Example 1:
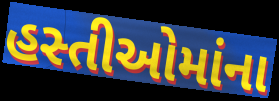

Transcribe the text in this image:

હસ્તીઓમાંના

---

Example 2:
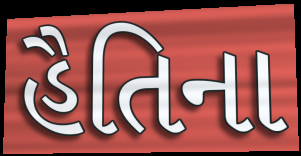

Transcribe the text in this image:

હૈતિના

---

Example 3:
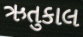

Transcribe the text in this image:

ઋતુકાલ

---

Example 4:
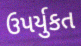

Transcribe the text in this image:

ઉપર્યુકત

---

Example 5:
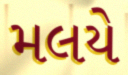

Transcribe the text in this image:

મલયે